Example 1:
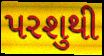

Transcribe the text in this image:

પરશુથી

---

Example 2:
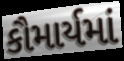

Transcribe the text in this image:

કૌમાર્યમાં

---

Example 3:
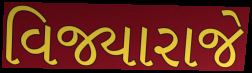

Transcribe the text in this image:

વિજ્યારાજે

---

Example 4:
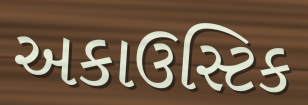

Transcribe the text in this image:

અકાઉસ્ટિક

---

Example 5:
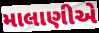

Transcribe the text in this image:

માલાણીએ